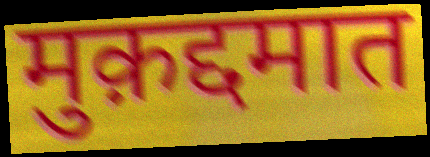
मुक़द्दमात